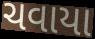
ચવાયા